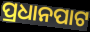
ପ୍ରଧାନପାଟ